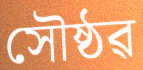
সৌষ্ঠৱ